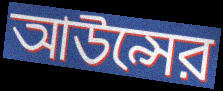
আউন্সের